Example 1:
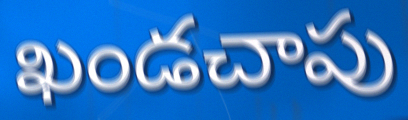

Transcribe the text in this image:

ఖండచాపు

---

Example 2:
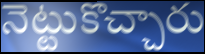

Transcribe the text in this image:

నెట్టుకొచ్చారు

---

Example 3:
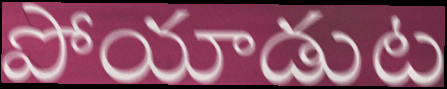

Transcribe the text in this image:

పోయాడుట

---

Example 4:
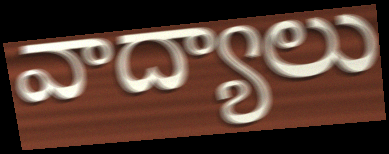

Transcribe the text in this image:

వాద్యాలు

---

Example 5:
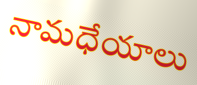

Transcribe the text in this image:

నామధేయాలు